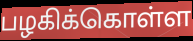
பழகிக்கொள்ள